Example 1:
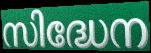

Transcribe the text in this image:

സിദ്ധേന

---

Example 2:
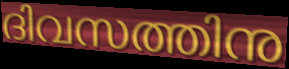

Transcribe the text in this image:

ദിവസത്തിനു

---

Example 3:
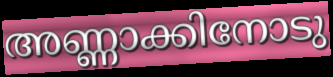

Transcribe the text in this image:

അണ്ണാക്കിനോടു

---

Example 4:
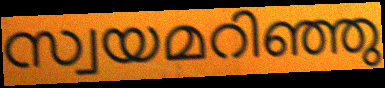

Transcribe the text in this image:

സ്വയമറിഞ്ഞു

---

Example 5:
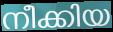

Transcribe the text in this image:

നീക്കിയ